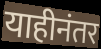
याहीनंतर